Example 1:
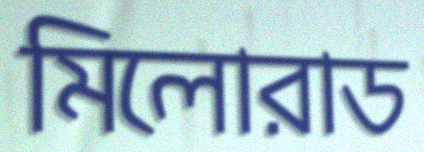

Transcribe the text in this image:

মিলোরাড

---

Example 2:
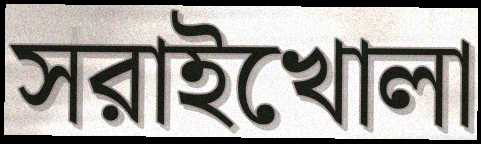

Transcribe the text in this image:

সরাইখোলা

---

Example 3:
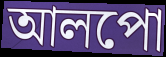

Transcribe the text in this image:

আলপো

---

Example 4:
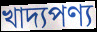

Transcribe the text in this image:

খাদ্যপণ্য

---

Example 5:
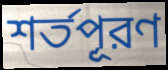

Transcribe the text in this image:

শর্তপূরণ